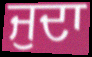
ਜੁਦਾ